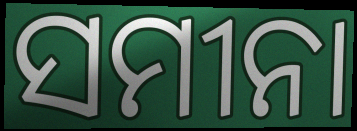
ସମୀନା